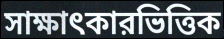
সাক্ষাৎকারভিত্তিক